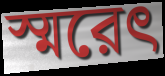
স্মরেৎ